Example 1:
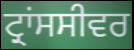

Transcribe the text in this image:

ਟ੍ਰਾਂਸਸੀਵਰ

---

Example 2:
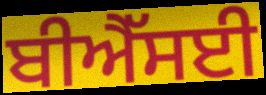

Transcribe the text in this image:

ਬੀਐੱਸਈ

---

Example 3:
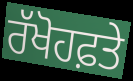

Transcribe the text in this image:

ਰੱਖੋਹਫ਼ਤੇ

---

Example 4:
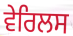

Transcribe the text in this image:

ਵੇਰਿਲਸ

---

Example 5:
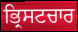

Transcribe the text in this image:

ਭ੍ਰਿਸਟਚਾਰ